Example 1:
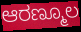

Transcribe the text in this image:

ಆರಣ್ಮೂಲ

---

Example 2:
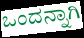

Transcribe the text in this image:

ಒಂದನ್ನಾಗಿ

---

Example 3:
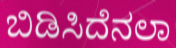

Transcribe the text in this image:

ಬಿಡಿಸಿದೆನಲಾ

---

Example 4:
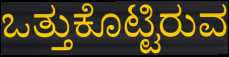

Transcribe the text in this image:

ಒತ್ತುಕೊಟ್ಟಿರುವ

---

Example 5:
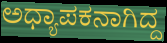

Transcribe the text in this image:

ಅಧ್ಯಾಪಕನಾಗಿದ್ದ